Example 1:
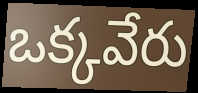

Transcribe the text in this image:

ఒక్కవేరు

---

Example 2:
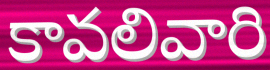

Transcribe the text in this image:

కావలివారి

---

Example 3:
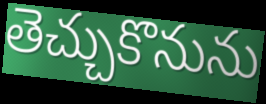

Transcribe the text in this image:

తెచ్చుకొనును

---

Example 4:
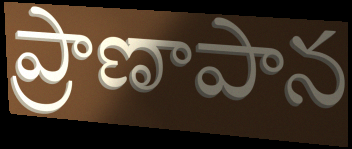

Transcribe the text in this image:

ప్రాణాపాన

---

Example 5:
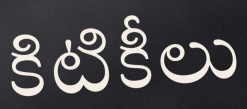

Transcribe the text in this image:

కిటికీలు